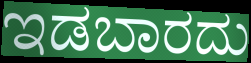
ಇಡಬಾರದು